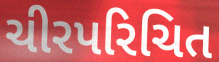
ચીરપરિચિત